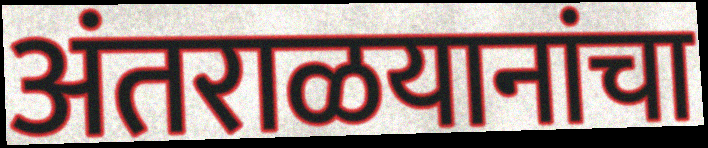
अंतराळयानांचा